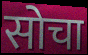
सोचा